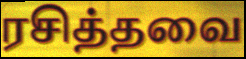
ரசித்தவை